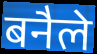
बनैले